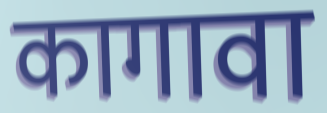
कागावा